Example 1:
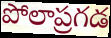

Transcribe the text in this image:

పోలాప్రగడ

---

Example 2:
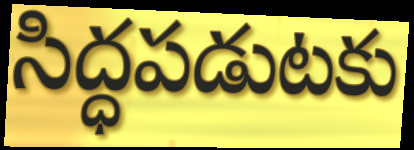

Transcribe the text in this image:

సిద్ధపడుటకు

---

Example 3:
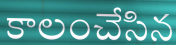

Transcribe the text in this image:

కాలంచేసిన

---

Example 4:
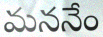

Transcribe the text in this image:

మననేం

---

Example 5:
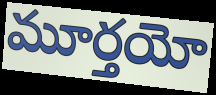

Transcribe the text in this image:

మూర్తయో